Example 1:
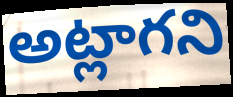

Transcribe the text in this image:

అట్లాగని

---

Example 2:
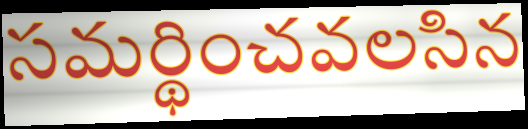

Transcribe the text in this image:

సమర్థించవలసిన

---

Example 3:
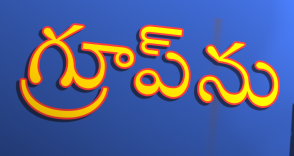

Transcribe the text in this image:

గ్రూప్‌ను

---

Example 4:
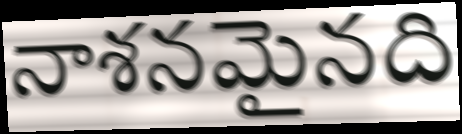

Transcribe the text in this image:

నాశనమైనది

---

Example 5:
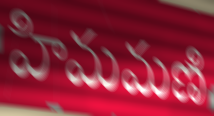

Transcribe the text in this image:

హిమమణి